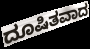
ದೂಷಿತವಾದ